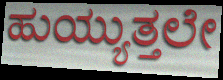
ಹುಯ್ಯುತ್ತಲೇ